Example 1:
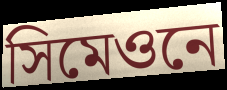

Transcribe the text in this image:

সিমেওনে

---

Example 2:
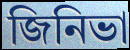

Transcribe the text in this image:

জিনিভা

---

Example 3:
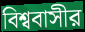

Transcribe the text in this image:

বিশ্ববাসীর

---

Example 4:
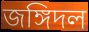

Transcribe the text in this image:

জঙ্গিদল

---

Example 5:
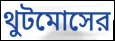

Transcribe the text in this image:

থুটমোসের